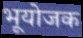
भूयोजक